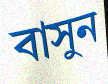
বাসুন